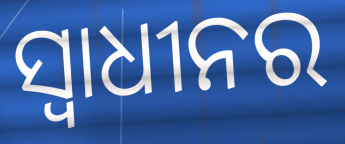
ସ୍ୱାଧୀନର